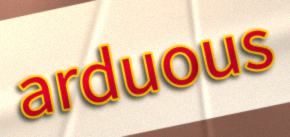
arduous